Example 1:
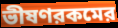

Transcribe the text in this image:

ভীষণরকমের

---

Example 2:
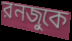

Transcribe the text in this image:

রনজুকে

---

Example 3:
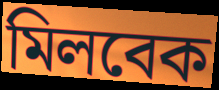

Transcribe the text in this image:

মিলবেক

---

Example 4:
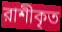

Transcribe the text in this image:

রাশীকৃত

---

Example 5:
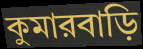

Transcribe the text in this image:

কুমারবাড়ি